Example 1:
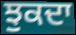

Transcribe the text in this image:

ਝੁਕਦਾ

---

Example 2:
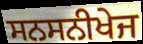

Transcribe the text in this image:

ਸਨਸਨੀਖੇਜ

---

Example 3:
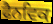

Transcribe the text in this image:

ਫੈਨਵਿਕ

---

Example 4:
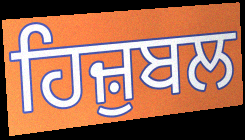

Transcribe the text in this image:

ਹਿਜ਼ੁਬਲ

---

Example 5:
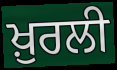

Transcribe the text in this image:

ਖ਼ੁਰਲੀ